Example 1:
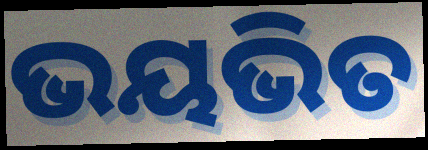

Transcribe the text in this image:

ଭୟଭିତ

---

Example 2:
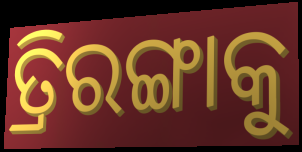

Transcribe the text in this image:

ତ୍ରିରଙ୍ଗାକୁ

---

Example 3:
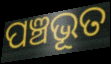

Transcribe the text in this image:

ପଞ୍ଚଭୂତ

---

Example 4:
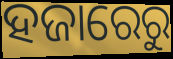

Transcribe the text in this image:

ହଜାରେରୁ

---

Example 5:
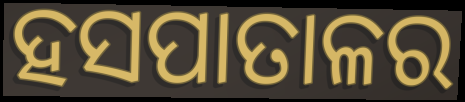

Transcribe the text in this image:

ହସପାତାଳର